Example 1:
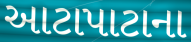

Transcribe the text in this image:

આટાપાટાના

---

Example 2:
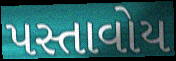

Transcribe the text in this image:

પસ્તાવોય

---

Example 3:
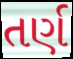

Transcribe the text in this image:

તર્ણ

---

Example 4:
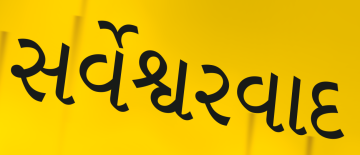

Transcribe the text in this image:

સર્વેશ્વરવાદ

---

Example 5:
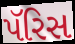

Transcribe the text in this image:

પૅરિસ